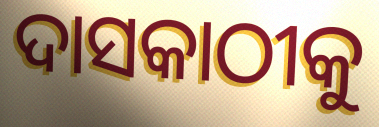
ଦାସକାଠୀକୁ